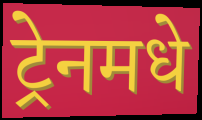
ट्रेनमधे